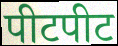
पीटपीट